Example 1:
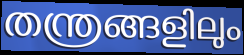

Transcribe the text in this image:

തന്ത്രങ്ങളിലും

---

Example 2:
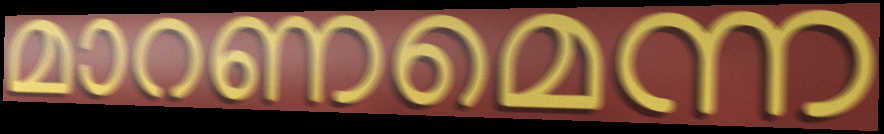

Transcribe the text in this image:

മാറണമെന്ന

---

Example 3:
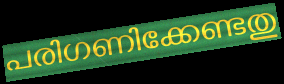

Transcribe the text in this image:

പരിഗണിക്കേണ്ടതു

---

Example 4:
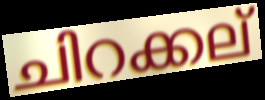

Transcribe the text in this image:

ചിറക്കല്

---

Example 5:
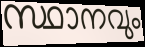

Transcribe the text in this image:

സ്ഥാനവും